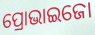
ପ୍ରୋଭାଇଜୋ